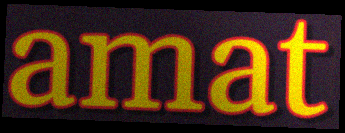
amat